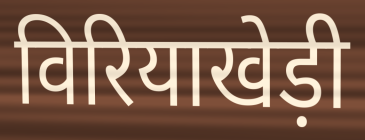
विरियाखेड़ी